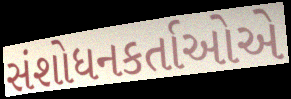
સંશોધનકર્તાઓએ